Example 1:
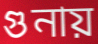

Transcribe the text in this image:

গুনায়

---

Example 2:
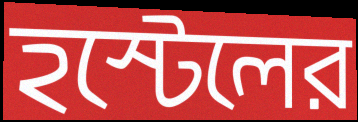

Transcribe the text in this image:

হস্টেলের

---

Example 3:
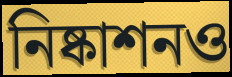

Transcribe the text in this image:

নিষ্কাশনও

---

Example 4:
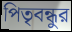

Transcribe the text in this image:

পিতৃবন্ধুর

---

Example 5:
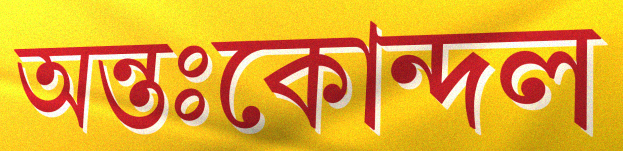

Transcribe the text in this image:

অন্তঃকোন্দল